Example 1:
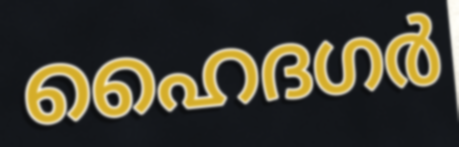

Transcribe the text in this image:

ഹൈദഗർ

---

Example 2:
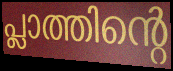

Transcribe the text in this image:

പ്ലാത്തിന്റെ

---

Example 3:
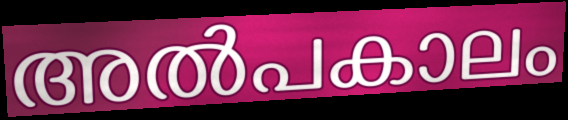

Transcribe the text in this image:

അൽപകാലം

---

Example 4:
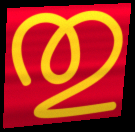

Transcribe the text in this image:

തു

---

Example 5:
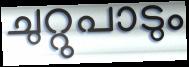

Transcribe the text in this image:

ചുറ്റുപാടും